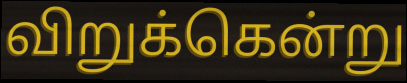
விறுக்கென்று